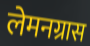
लेमनग्रास